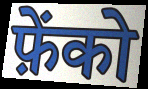
फ़ेंको